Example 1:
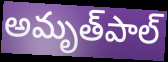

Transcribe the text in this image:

అమృత్‌పాల్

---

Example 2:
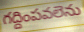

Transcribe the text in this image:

గద్దింపవలెను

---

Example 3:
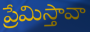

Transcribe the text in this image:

ప్రేమిస్తావా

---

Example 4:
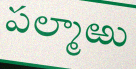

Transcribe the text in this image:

పల్మాఱు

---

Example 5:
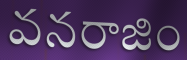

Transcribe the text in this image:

వనరాజిం